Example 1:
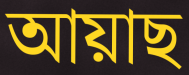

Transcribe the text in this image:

আয়াছ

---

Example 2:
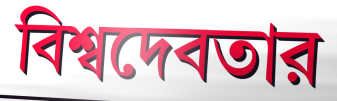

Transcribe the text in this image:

বিশ্বদেবতার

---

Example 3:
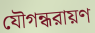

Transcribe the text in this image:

যৌগন্ধরায়ণ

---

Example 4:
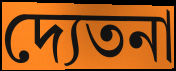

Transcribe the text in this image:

দ্যেতনা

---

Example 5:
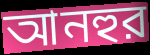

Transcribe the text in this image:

আনহুর